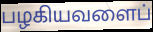
பழகியவளைப்